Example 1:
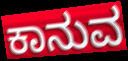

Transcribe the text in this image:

ಕಾನುವ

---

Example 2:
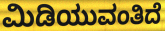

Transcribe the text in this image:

ಮಿಡಿಯುವಂತಿದೆ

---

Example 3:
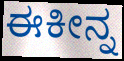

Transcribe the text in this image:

ಈಕೀನ್ನ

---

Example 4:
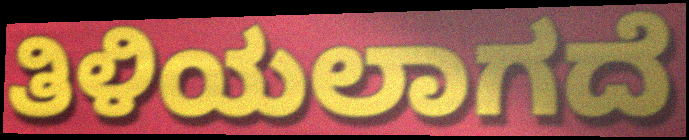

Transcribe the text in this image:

ತಿಳಿಯಲಾಗದೆ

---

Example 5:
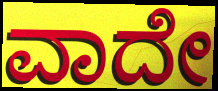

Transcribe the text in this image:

ವಾದೇ